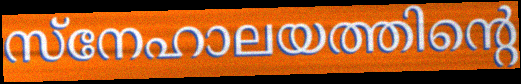
സ്നേഹാലയത്തിന്റെ